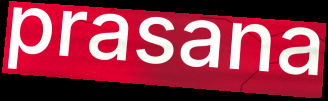
prasana